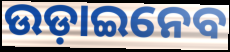
ଉଡ଼ାଇନେବ